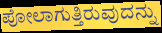
ಪೋಲಾಗುತ್ತಿರುವುದನ್ನು